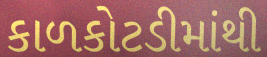
કાળકોટડીમાંથી